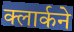
क्लार्कने